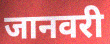
जानवरी